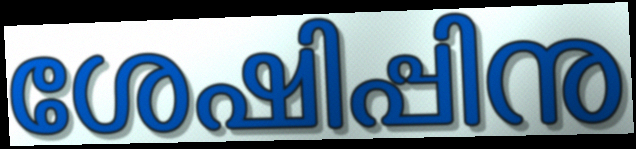
ശേഷിപ്പിനു